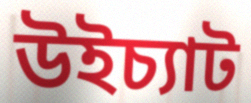
উইচ্যাট